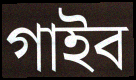
গাইব